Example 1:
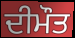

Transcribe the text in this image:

ਦੀਮੌਤ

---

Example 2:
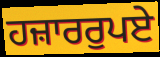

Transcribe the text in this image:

ਹਜ਼ਾਰਰੁਪਏ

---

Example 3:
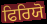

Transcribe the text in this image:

ਫਿਰਿਯੋ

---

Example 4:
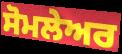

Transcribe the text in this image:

ਸੋਮਲੇਅਰ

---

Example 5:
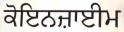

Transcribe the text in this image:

ਕੋਇਨਜ਼ਾਈਮ